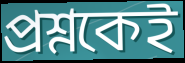
প্রশ্নকেই